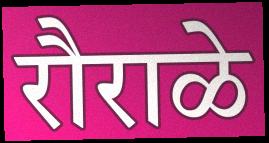
रौराळे